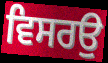
ਵਿਸਰਉ